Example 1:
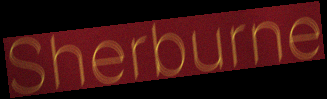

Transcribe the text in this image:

Sherburne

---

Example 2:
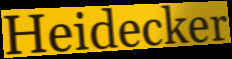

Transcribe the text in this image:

Heidecker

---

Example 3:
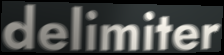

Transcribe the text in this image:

delimiter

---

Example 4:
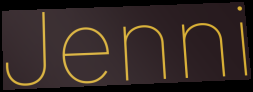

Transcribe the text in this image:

Jenni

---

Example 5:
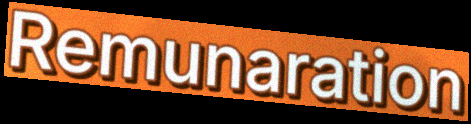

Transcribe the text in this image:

Remunaration